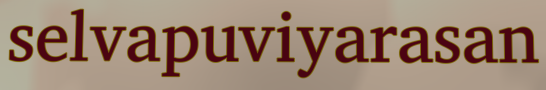
selvapuviyarasan